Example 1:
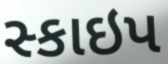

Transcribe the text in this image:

સ્કાઇપ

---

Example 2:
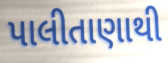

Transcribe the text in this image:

પાલીતાણાથી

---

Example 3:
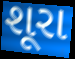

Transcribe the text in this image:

શૂરા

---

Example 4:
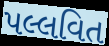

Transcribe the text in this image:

પલ્લવિત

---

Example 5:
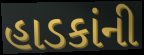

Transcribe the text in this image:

હાડકાંની